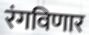
रंगविणार